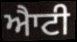
ਐਾਟੀ